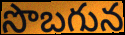
సొబగున